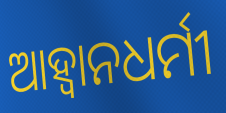
ଆହ୍ବାନଧର୍ମୀ